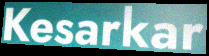
Kesarkar